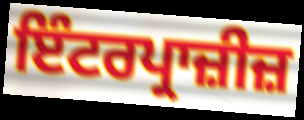
ਇੰਟਰਪ੍ਰਾਜ਼ੀਜ਼